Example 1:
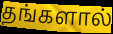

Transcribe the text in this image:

தங்களால்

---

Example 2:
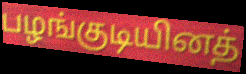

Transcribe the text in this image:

பழங்குடியினத்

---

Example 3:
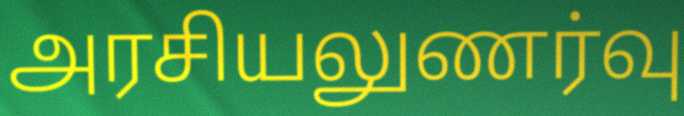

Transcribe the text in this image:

அரசியலுணர்வு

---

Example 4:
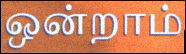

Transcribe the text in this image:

ஒன்றாம்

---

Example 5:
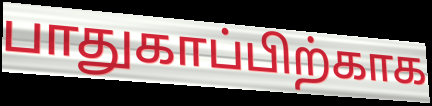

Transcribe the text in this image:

பாதுகாப்பிற்காக